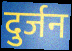
दुर्जन